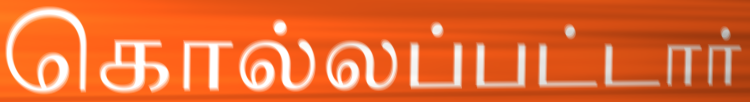
கொல்லப்பட்டார்